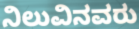
ನಿಲುವಿನವರು